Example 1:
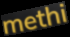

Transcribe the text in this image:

methi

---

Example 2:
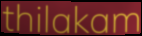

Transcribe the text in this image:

thilakam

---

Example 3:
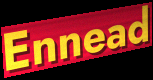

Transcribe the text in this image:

Ennead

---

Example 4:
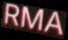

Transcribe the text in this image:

RMA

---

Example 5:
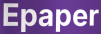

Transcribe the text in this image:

Epaper